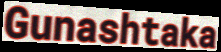
Gunashtaka